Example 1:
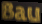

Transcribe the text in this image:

Bau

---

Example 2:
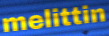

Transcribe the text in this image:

melittin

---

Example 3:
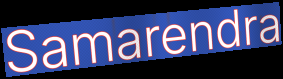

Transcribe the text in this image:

Samarendra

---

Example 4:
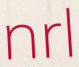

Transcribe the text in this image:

nrl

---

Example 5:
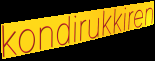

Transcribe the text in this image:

kondirukkiren